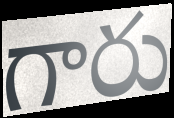
గారు